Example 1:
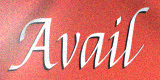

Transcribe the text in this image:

Avail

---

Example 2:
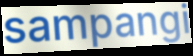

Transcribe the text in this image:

sampangi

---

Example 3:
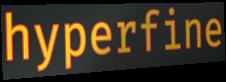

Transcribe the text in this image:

hyperfine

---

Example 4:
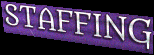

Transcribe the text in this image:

STAFFING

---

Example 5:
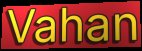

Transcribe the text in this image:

Vahan